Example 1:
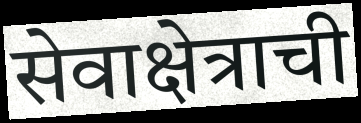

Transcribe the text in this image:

सेवाक्षेत्राची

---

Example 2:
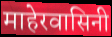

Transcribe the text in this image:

माहेरवासिनी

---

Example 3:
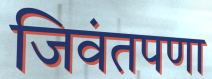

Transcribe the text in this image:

जिवंतपणा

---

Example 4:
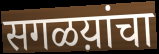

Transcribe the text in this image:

सगळय़ांचा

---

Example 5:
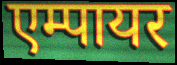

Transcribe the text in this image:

एम्पायर